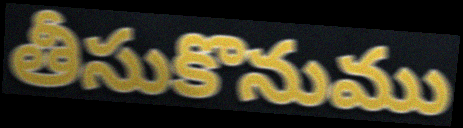
తీసుకొనుము